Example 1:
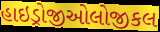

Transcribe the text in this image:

હાઇડ્રોજીઓલોજીકલ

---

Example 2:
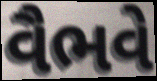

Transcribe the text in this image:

વૈભવે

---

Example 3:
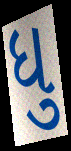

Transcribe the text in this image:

ધુ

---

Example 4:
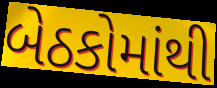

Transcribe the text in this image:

બેઠકોમાંથી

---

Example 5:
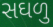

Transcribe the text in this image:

સઘળુ